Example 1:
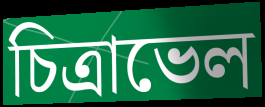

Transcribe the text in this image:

চিত্রাভেল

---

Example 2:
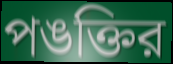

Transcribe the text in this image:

পঙক্তির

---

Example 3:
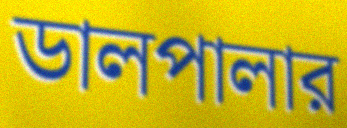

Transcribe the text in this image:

ডালপালার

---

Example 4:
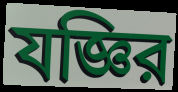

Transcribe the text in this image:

যজ্ঞির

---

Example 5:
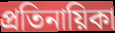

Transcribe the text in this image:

প্রতিনায়িকা